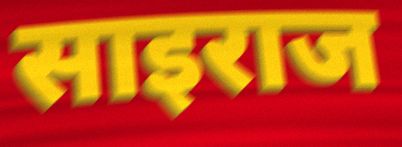
साइराज